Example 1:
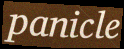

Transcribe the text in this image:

panicle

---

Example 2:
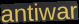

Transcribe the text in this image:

antiwar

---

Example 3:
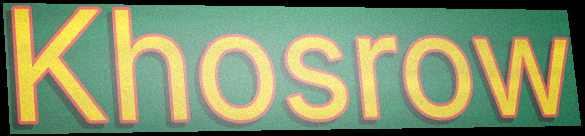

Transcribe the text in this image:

Khosrow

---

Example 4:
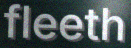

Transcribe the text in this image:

fleeth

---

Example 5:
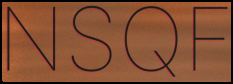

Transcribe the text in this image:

NSQF